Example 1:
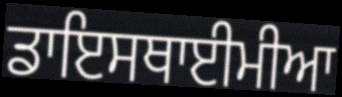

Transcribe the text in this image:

ਡਾਇਸਥਾਈਮੀਆ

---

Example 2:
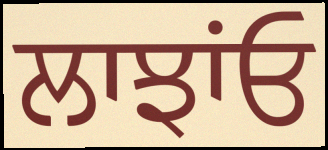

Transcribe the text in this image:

ਲਾਝਾਂਓ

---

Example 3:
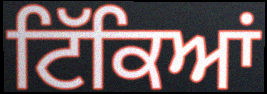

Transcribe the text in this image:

ਟਿੱਕਿਆਂ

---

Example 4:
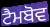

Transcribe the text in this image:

ਟੈਮਬੋਵ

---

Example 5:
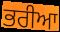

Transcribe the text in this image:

ਭਰੀਆ